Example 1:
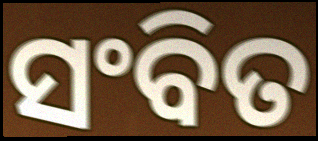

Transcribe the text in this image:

ସଂବିତ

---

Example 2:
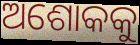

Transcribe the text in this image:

ଅଶୋକକୁ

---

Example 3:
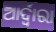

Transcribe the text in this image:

ଆର୍ଦ୍ୱାରା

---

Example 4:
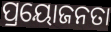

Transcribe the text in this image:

ପ୍ରୟୋଜନତା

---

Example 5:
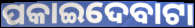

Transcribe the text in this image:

ପକାଇଦେବାଟା